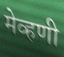
मेव्हणी